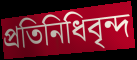
প্রতিনিধিবৃন্দ